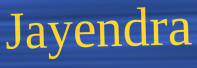
Jayendra